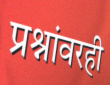
प्रश्नांवरही